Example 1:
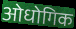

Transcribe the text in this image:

ओधोगिक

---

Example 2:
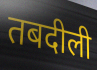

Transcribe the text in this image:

तबदीली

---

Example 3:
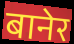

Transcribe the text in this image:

बानेर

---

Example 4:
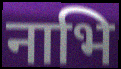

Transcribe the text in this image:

नाभि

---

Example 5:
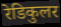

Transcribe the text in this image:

रेडिकुलर